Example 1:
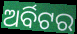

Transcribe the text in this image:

ଅର୍ବିଟର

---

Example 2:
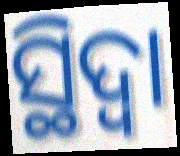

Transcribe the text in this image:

ସ୍ଥିଦ୍ଵା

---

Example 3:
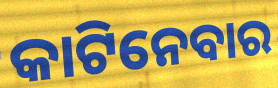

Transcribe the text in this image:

କାଟିନେବାର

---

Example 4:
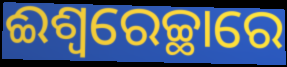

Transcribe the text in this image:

ଈଶ୍ୱରେଚ୍ଛାରେ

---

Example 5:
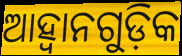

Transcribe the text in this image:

ଆହ୍ବାନଗୁଡ଼ିକ